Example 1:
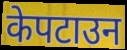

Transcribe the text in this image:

केपटाउन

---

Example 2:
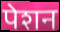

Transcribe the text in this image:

पेशन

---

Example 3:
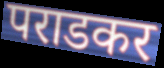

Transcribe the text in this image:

पराडकर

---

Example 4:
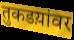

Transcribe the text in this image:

तुकडय़ांवर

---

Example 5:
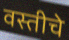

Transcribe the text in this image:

वस्तीचे